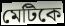
মেটিকে